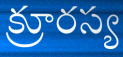
క్రూరస్య